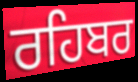
ਰਹਿਬਰ